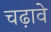
चढ़ावे